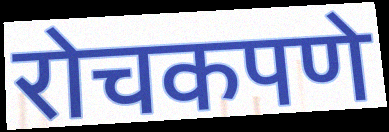
रोचकपणे